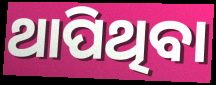
ଥାପିଥିବା